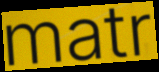
matr